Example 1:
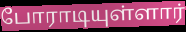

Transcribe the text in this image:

போராடியுள்ளார்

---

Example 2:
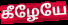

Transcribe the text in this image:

கீழேயே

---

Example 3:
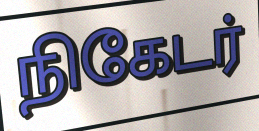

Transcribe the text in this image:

நிகேடர்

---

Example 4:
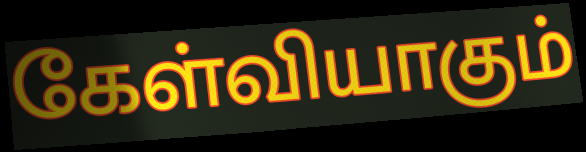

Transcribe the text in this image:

கேள்வியாகும்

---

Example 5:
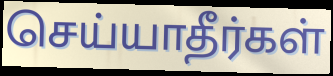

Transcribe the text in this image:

செய்யாதீர்கள்